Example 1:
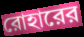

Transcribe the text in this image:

রোহারের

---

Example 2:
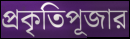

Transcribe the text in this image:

প্রকৃতিপূজার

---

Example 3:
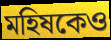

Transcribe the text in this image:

মহিষকেও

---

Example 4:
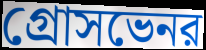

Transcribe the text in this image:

গ্রোসভেনর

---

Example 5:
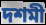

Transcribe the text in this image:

দশমী